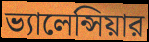
ভ্যালেন্সিয়ার